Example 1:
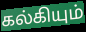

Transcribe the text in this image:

கல்கியும்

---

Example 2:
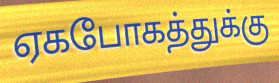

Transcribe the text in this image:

ஏகபோகத்துக்கு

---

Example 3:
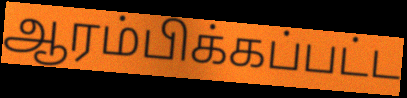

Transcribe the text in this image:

ஆரம்பிக்கப்பட்ட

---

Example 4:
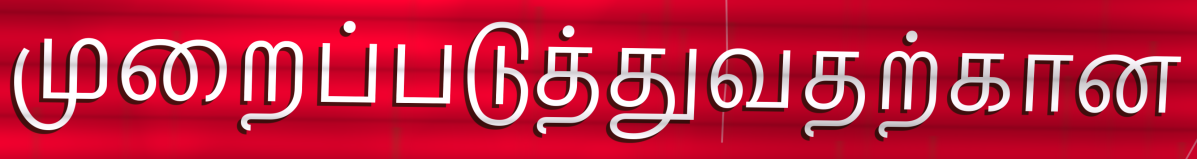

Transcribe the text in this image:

முறைப்படுத்துவதற்கான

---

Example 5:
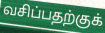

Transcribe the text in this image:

வசிப்பதற்குக்